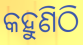
କହୁଣିଠି